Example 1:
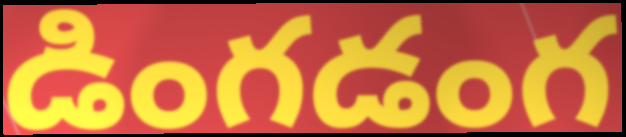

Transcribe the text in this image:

డింగడంగ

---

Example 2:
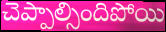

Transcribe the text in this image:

చెప్పాల్సిందిపోయి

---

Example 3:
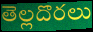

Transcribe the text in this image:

తెల్లదొరలు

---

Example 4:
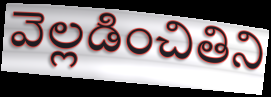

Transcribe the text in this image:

వెల్లడించితిని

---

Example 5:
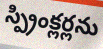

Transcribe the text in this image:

స్ప్రింక్లర్లను